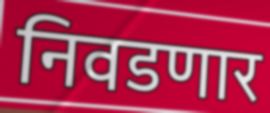
निवडणार